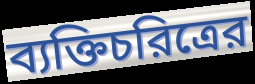
ব্যক্তিচরিত্রের